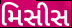
મિસીસ